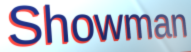
Showman